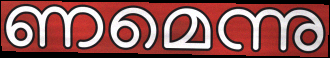
ണമെന്നു